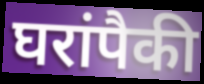
घरांपैकी